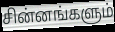
சின்னங்களும்